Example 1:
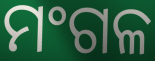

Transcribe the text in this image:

ମଂଗଳ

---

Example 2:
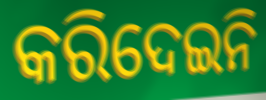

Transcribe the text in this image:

କରିଦେଇନି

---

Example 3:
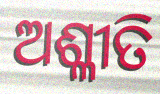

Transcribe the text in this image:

ଅଶ୍ଳୀତି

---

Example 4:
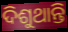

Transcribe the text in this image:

ଦିଶୁଥାନ୍ତି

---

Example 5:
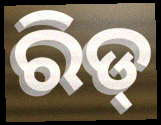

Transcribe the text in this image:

ରିଡ୍